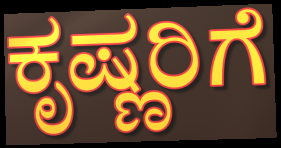
ಕೃಷ್ಣರಿಗೆ